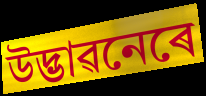
উদ্ভাৱনেৰে